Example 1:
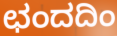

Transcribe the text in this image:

ಛಂದದಿಂ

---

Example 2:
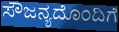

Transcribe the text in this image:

ಸೌಜನ್ಯದೊಂದಿಗೆ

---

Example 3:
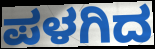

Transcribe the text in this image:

ಪಳಗಿದ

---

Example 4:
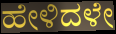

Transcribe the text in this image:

ಹೇಳಿದಳೇ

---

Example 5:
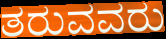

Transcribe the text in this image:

ತರುವವರು